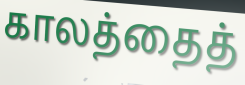
காலத்தைத்